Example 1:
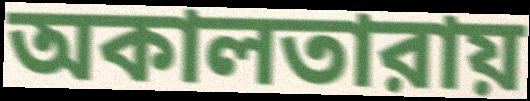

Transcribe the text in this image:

অকালতারায়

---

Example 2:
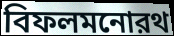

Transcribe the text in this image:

বিফলমনোরথ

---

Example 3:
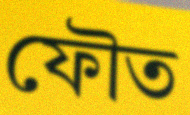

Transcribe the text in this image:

ফৌত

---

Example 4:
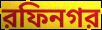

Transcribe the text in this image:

রফিনগর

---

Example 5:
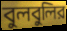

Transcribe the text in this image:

বুলবুলির